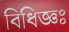
বিধিজ্ঞঃ